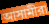
আসামীরা